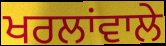
ਖਰਲਾਂਵਾਲੇ